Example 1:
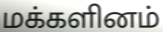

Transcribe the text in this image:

மக்களினம்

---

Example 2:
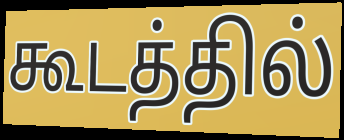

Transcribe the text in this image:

கூடத்தில்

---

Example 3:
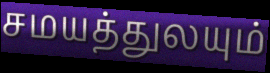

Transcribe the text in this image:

சமயத்துலயும்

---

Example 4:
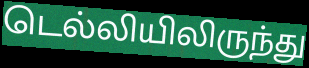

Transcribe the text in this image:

டெல்லியிலிருந்து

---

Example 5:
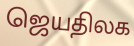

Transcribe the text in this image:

ஜெயதிலக